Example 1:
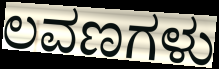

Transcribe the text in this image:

ಲವಣಗಳು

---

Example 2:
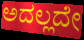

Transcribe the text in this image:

ಅದಲ್ಲದೇ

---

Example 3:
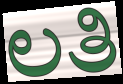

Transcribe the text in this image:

ಲತಿ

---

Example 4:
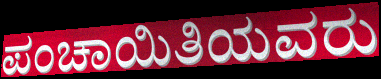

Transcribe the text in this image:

ಪಂಚಾಯಿತಿಯವರು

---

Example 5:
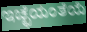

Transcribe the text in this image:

ಇಚ್ಛೆಯಂತೆಯೆ